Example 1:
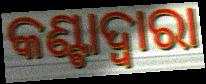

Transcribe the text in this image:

କଣ୍ଟାଦ୍ୱାରା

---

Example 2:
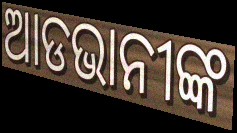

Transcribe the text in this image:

ଆଡଭାନୀଙ୍କ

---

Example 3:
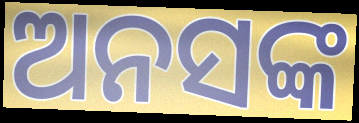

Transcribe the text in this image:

ଅନସଙ୍କ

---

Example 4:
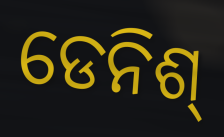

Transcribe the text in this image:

ଡେନିଶ୍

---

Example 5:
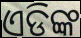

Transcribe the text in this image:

ଏଡିଙ୍କ